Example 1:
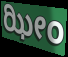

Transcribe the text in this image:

ಝೀಂ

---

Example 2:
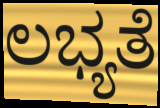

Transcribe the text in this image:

ಲಭ್ಯತೆ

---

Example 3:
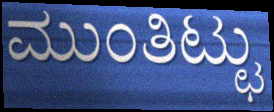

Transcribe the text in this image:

ಮುಂತಿಟ್ಟು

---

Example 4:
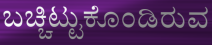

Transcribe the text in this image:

ಬಚ್ಚಿಟ್ಟುಕೊಂಡಿರುವ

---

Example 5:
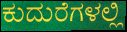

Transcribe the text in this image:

ಕುದುರೆಗಳಲ್ಲಿ